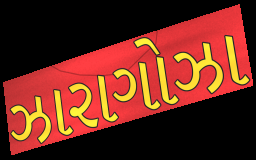
ઝારાગોઝા